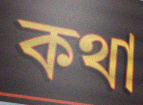
কথা